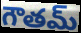
గౌతమ్